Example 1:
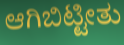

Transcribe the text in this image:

ಆಗಿಬಿಟ್ಟೀತು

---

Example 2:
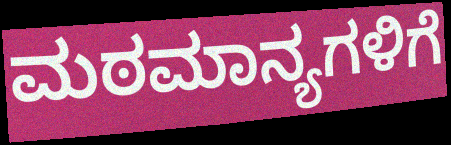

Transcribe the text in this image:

ಮಠಮಾನ್ಯಗಳಿಗೆ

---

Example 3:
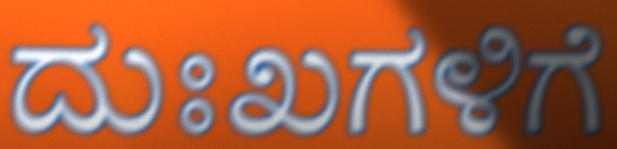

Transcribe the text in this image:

ದುಃಖಗಳಿಗೆ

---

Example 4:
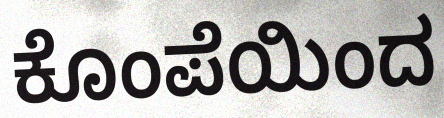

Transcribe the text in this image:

ಕೊಂಪೆಯಿಂದ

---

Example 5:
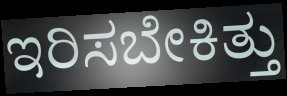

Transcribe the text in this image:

ಇರಿಸಬೇಕಿತ್ತು